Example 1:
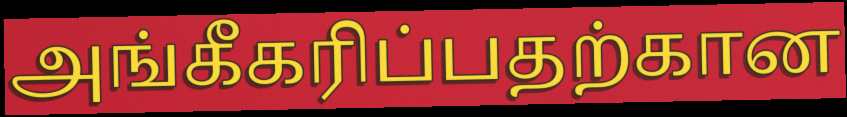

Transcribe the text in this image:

அங்கீகரிப்பதற்கான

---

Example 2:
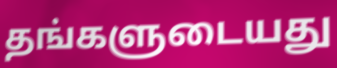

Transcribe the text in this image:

தங்களுடையது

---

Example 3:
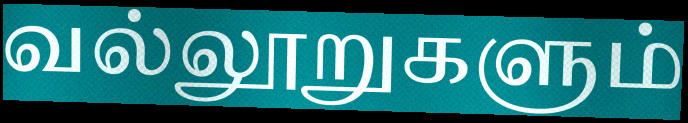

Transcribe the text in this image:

வல்லூறுகளும்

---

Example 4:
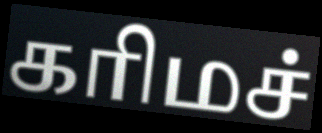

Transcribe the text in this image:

கரிமச்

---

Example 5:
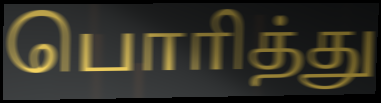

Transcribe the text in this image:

பொரித்து